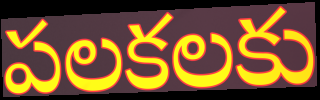
పలకలకు